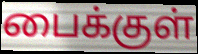
பைக்குள்